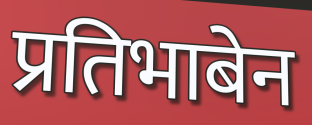
प्रतिभाबेन